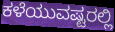
ಕಳೆಯುವಷ್ಟರಲ್ಲಿ